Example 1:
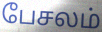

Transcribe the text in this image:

பேசலம்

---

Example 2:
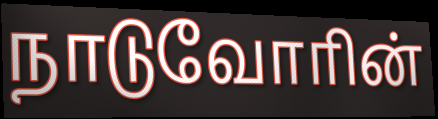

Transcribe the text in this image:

நாடுவோரின்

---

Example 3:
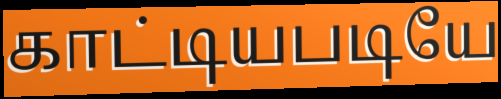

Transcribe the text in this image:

காட்டியபடியே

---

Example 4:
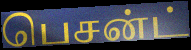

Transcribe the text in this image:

பெசன்ட்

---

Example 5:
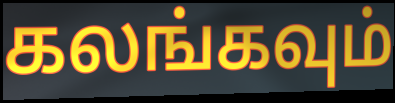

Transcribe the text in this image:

கலங்கவும்